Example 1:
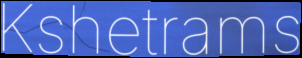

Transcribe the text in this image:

Kshetrams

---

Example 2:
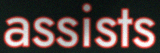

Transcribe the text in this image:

assists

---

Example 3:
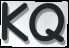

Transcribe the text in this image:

KQ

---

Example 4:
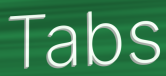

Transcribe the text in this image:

Tabs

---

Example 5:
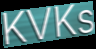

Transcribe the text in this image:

KVKs